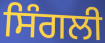
ਸਿੰਗਲੀ